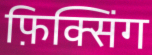
फ़िक्सिंग